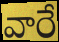
వారే